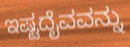
ಇಷ್ಟದೈವವನ್ನು